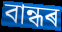
বান্ধৰ